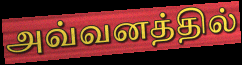
அவ்வனத்தில்